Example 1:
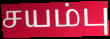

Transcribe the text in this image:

சயம்பு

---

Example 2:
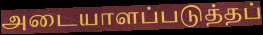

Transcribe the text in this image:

அடையாளப்படுத்தப்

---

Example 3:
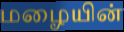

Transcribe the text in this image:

மழையின்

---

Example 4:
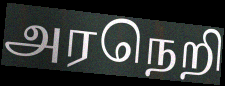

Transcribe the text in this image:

அரநெறி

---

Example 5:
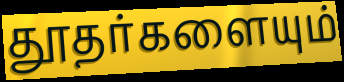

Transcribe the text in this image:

தூதர்களையும்